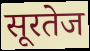
सूरतेज